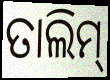
ତାଲିମ୍